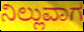
ನಿಲ್ಲುವಾಗ